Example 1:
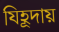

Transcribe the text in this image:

যিহূদায়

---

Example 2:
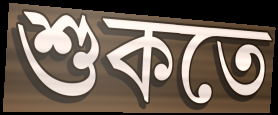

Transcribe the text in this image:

শুকতে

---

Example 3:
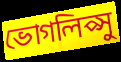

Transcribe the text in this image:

ভোগলিপ্সু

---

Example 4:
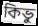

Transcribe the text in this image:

কিভু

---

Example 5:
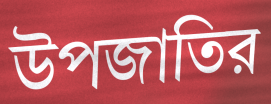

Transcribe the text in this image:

উপজাতির